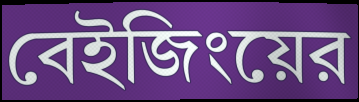
বেইজিংয়ের